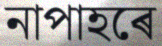
নাপাহৰে